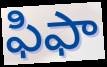
ఫిఫా